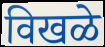
विखळे